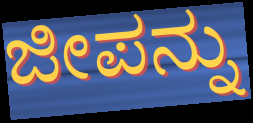
ಜೀಪನ್ನು